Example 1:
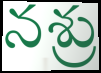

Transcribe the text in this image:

నశ్రు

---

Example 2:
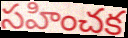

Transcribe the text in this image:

సహించక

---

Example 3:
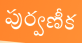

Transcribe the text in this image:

పుర్వణీక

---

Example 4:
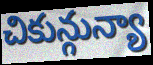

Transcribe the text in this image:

చికున్గున్యా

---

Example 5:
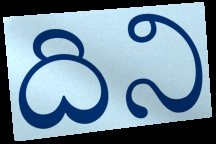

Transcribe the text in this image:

దిని